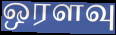
ஒரளவு